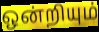
ஒன்றியும்